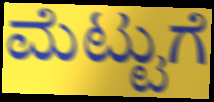
ಮೆಟ್ಟುಗೆ